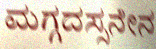
ಮಗ್ಗದಸ್ಸನೇನ